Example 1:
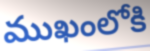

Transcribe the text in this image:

ముఖంలోకి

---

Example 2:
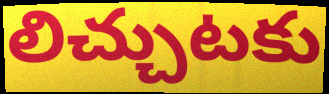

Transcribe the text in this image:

లిచ్చుటకు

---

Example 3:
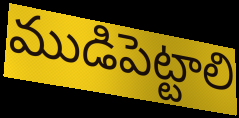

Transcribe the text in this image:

ముడిపెట్టాలి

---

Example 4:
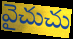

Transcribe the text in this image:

వైచుచు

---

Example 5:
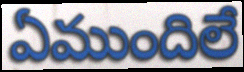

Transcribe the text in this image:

ఏముందిలే